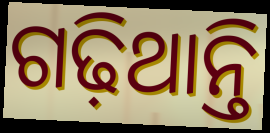
ଗଢ଼ିଥାନ୍ତି